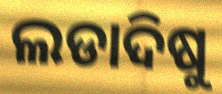
ଲଡାଦିଷୁ